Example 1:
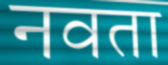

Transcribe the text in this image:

नवता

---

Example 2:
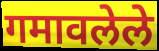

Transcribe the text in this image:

गमावलेले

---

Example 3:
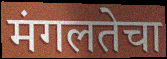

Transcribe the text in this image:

मंगलतेचा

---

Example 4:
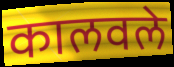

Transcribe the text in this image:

कालवले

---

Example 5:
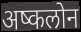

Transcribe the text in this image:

अष्कलोन